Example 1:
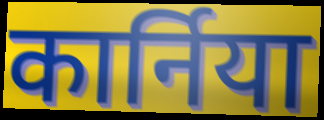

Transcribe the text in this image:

कार्निया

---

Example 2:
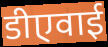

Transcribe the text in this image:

डीएवाई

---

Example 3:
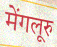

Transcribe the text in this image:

मेंगलूरु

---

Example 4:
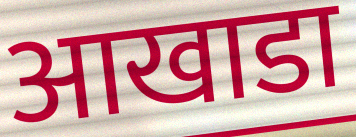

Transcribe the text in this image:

आखाडा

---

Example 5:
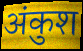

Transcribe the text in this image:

अंकुश